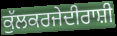
ਕੁੱਲਕਰਜੇਦੀਰਾਸ਼ੀ